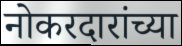
नोकरदारांच्या